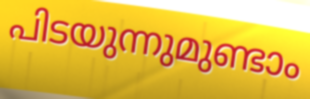
പിടയുന്നുമുണ്ടാം